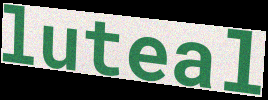
luteal